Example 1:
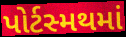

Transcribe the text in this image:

પોર્ટસ્મથમાં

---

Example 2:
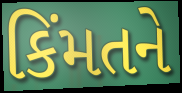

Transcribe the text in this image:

કિંમતને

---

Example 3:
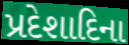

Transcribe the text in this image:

પ્રદેશાદિના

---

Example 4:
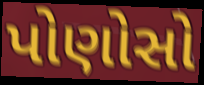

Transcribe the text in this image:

પોણોસો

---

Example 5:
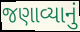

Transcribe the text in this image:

જણાવ્યાનું